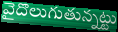
వైదొలుగుతున్నట్టు